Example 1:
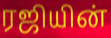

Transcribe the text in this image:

ரஜியின்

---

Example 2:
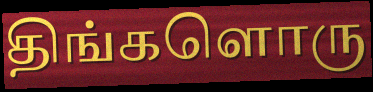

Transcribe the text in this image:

திங்களொரு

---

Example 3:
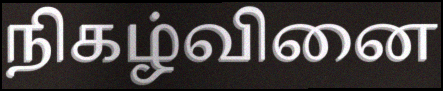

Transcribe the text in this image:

நிகழ்வினை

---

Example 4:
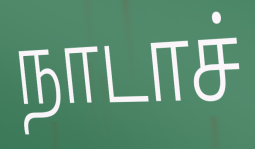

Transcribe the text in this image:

நாடாச்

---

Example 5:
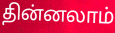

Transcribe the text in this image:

தின்னலாம்